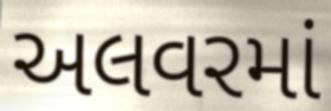
અલવરમાં